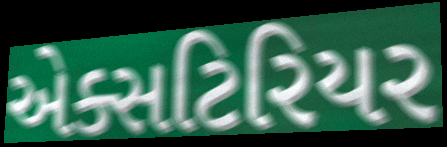
એક્સટિરિયર